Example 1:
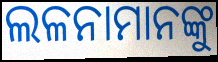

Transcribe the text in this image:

ଲଳନାମାନଙ୍କୁ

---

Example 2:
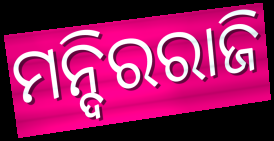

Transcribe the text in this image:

ମନ୍ଦିରରାଜି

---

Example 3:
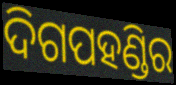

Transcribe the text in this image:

ଦିଗପହଣ୍ଡିର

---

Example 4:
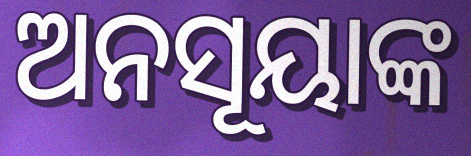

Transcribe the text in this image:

ଅନସୂୟାଙ୍କ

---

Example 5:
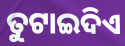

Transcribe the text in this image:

ତୁଟାଇଦିଏ